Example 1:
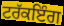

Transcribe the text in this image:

ਟਰੱਕਇੰਗ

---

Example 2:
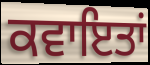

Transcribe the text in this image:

ਕਵਾਇਤਾਂ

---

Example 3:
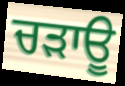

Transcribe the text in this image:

ਚੜਾਊ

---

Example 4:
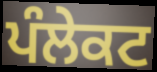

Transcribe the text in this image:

ਪੰਲੇਕਟ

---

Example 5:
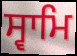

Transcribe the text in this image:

ਸ੍ਵਾਮਿ